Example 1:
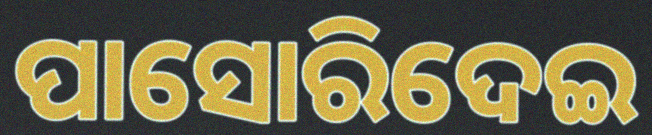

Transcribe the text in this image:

ପାସୋରିଦେଇ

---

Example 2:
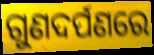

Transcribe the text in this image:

ଗୁଣଦର୍ପଣରେ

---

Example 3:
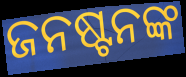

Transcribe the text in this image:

ଜନଷ୍ଟନଙ୍କ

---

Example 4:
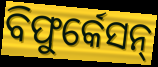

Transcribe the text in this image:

ବିଫୁର୍କେସନ୍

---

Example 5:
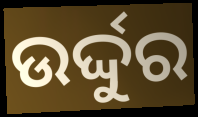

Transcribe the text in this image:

ଉର୍ଦ୍ଦୁର